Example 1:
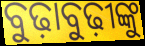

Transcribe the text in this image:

ବୁଢ଼ାବୁଢ଼ୀଙ୍କୁ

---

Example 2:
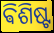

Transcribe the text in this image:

ଵିଶିଷ୍ଟ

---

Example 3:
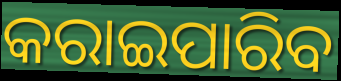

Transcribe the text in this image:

କରାଇପାରିବ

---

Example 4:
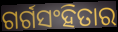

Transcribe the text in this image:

ଗର୍ଗସଂହିତାର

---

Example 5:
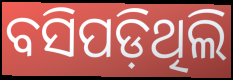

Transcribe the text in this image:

ବସିପଡ଼ିଥିଲି